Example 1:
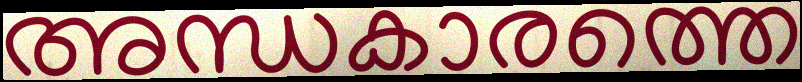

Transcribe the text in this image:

അന്ധകാരത്തെ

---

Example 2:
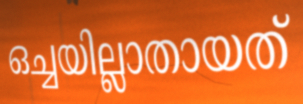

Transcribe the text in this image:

ഒച്ചയില്ലാതായത്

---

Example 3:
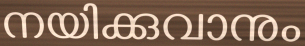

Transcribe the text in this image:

നയിക്കുവാനും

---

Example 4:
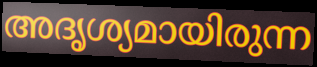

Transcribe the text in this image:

അദൃശ്യമായിരുന്ന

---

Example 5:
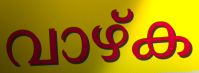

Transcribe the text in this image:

വാഴ്ക